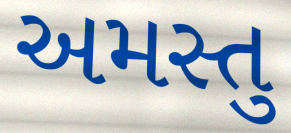
અમસ્તુ